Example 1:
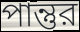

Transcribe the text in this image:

পান্তুর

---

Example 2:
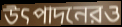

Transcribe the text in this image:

উৎপাদনেরও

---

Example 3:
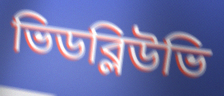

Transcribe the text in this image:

ভিডব্লিউভি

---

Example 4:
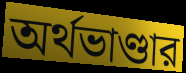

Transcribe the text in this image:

অর্থভাণ্ডার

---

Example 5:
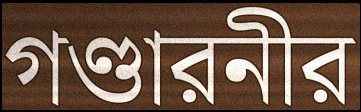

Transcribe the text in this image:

গণ্ডারনীর